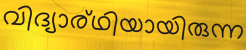
വിദ്യാര്ഥിയായിരുന്ന